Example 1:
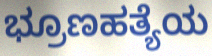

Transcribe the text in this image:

ಭ್ರೂಣಹತ್ಯೆಯ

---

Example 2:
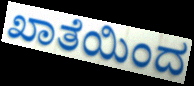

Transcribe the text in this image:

ಖಾತೆಯಿಂದ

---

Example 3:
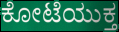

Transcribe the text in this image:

ಕೋಟೆಯುಕ್ತ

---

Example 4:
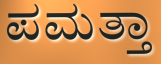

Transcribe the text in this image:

ಪಮತ್ತಾ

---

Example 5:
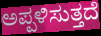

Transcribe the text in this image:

ಅಪ್ಪಳಿಸುತ್ತದೆ